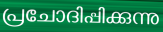
പ്രചോദിപ്പിക്കുന്നു